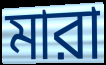
মারা